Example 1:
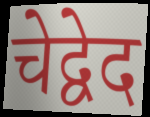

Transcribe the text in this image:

चेद्वेद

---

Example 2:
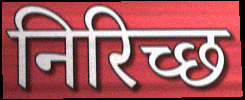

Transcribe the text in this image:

निरिच्छ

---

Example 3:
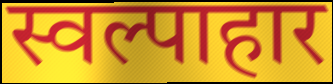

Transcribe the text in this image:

स्वल्पाहार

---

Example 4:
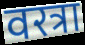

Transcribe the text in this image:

वरत्रा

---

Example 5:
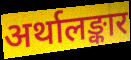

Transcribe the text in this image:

अर्थालङ्कार